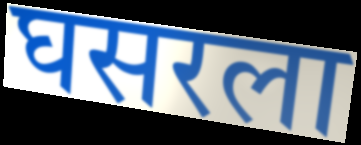
घसरला